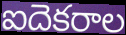
ఐదెకరాల